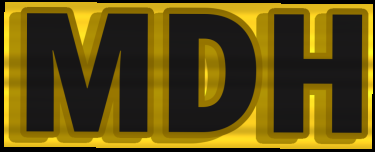
MDH